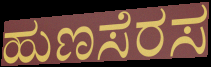
ಹುಣಸೆರಸ